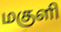
மகுளி